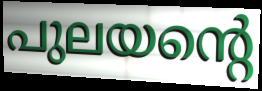
പുലയന്റെ